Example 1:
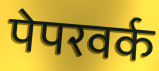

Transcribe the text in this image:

पेपरवर्क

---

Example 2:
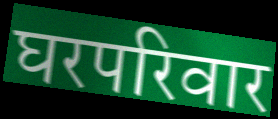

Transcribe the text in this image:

घरपरिवार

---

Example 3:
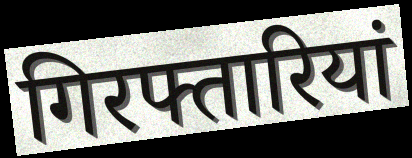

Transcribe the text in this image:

गिरफ्तारियां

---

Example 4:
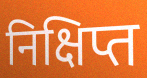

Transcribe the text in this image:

निक्षिप्त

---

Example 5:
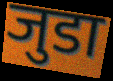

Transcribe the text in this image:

जुडा